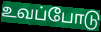
உவப்போடு